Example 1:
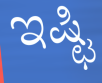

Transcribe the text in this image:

ಇಷ್ಟಿ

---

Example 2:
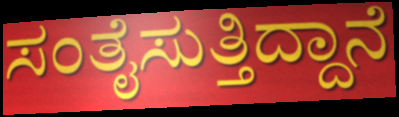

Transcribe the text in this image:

ಸಂತೈಸುತ್ತಿದ್ದಾನೆ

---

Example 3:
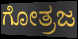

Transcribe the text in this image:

ಗೋತ್ರಜ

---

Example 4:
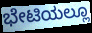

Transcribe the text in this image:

ಭೇಟಿಯಲ್ಲೂ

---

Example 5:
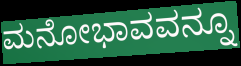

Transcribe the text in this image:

ಮನೋಭಾವವನ್ನೂ